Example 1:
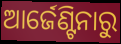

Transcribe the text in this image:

ଆର୍ଜେଣ୍ଟିନାରୁ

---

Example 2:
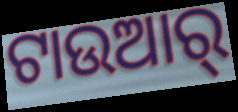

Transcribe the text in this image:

ଟାଉଆର୍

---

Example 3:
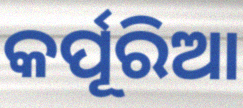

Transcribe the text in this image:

କର୍ପୂରିଆ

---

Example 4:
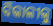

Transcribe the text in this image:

ବିକାଳୀକୁ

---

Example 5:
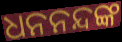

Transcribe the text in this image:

ଧନନନ୍ଦଙ୍କ